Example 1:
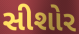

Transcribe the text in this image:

સીશોર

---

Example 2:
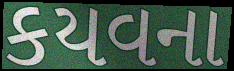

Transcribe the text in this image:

કયવના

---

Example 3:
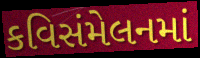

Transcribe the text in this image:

કવિસંમેલનમાં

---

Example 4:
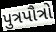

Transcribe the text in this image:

પુત્રપૌત્રો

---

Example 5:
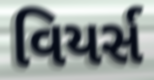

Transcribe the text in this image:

વિયર્સ